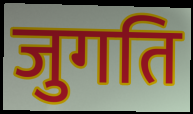
जुगति